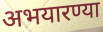
अभयारण्या